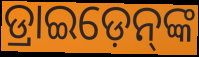
ଡ୍ରାଇଡ଼େନ୍‌ଙ୍କ